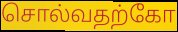
சொல்வதற்கோ